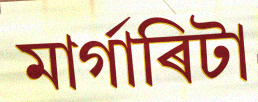
মাৰ্গাৰিটা